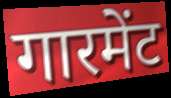
गारमेंट